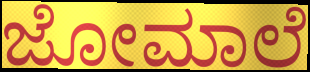
ಜೋಮಾಲೆ